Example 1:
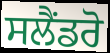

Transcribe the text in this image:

ਸਲੈਂਡਰੋ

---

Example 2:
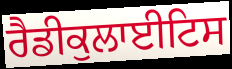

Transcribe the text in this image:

ਰੈਡੀਕੁਲਾਈਟਿਸ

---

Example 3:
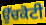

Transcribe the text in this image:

ਉੱਚਕੋਟੀ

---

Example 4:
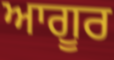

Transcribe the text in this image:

ਆਗੂਰ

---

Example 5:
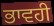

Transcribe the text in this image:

ਭਾਵਹੀ